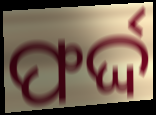
ଫର୍ଦ୍ଦ